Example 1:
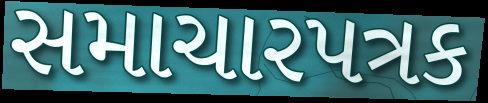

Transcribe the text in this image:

સમાચારપત્રક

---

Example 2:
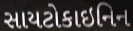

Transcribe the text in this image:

સાયટોકાઇનિન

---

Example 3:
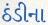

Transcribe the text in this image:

ઠંડીના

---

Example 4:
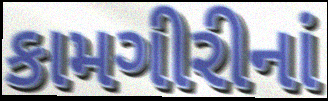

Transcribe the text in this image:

કામગીરીનાં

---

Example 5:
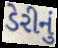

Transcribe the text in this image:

ડેરીનું